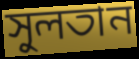
সুলতান